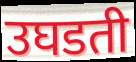
उघडती